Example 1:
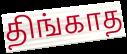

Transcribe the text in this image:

திங்காத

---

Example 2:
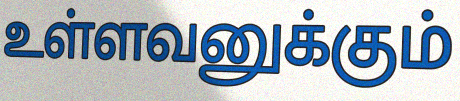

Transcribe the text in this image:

உள்ளவனுக்கும்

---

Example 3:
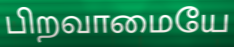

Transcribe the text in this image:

பிறவாமையே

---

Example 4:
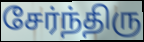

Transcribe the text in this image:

சேர்ந்திரு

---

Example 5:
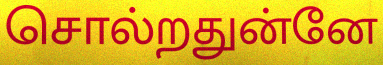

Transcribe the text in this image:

சொல்றதுன்னே